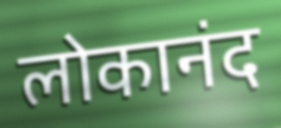
लोकानंद